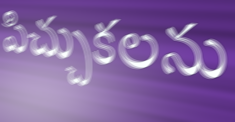
పిచ్చుకలను